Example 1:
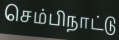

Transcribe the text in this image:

செம்பிநாட்டு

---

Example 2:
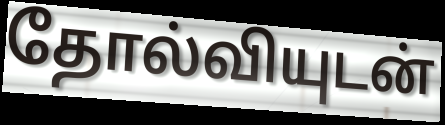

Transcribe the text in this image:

தோல்வியுடன்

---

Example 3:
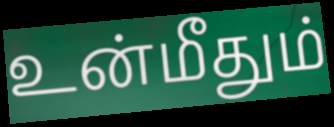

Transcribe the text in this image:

உன்மீதும்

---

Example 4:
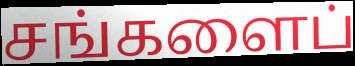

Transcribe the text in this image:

சங்களைப்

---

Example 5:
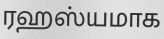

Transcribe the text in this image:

ரஹஸ்யமாக